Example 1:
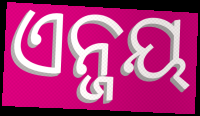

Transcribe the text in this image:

ଏନ୍ଜୟ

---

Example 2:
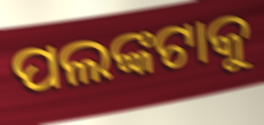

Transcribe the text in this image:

ପଲଙ୍କଟାକୁ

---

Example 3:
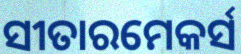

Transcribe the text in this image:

ସୀତାରମେକର୍ସ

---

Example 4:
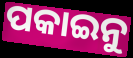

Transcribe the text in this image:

ପକାଇନୁ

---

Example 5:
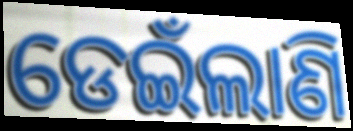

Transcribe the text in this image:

ଡେଇଁଲାଣି